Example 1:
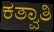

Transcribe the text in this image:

ಕತ್ವಾತಿ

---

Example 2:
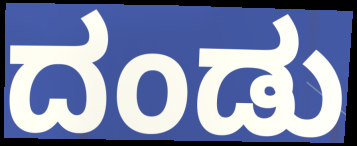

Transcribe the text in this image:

ದಂಡು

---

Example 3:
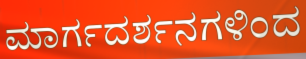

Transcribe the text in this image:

ಮಾರ್ಗದರ್ಶನಗಳಿಂದ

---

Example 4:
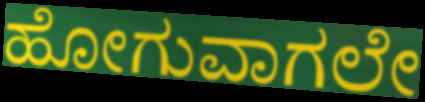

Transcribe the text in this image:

ಹೋಗುವಾಗಲೇ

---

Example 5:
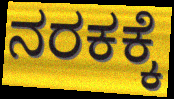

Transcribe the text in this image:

ನರಕಕ್ಕೆ